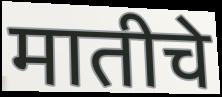
मातीचे